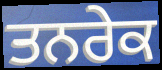
ਤਨਰੇਕ